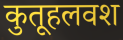
कुतूहलवश